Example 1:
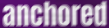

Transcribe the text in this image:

anchored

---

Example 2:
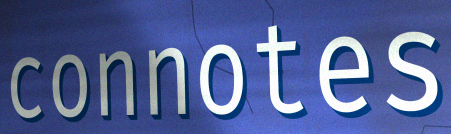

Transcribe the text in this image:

connotes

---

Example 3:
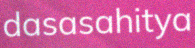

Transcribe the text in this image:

dasasahitya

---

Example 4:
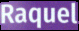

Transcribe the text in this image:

Raquel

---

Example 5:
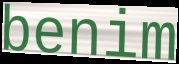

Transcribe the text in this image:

benim